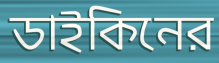
ডাইকিনের